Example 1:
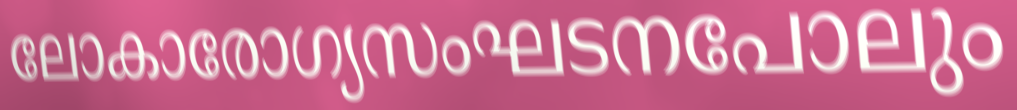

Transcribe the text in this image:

ലോകാരോഗ്യസംഘടനപോലും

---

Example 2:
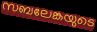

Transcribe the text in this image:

സബലേങ്കയുടെ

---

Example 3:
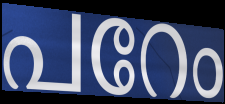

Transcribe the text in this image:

പറേം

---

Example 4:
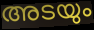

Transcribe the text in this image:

അടയും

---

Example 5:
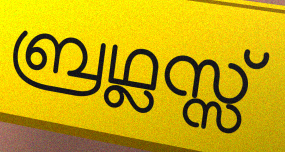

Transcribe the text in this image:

ബ്രഥ്ലസ്സ്